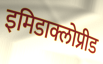
इमिडाक्लोप्रीड